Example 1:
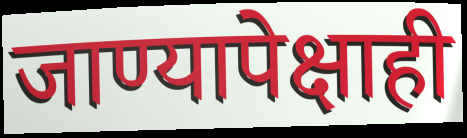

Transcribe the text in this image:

जाण्यापेक्षाही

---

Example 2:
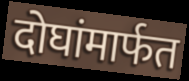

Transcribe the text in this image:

दोघांमार्फत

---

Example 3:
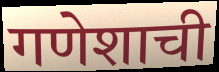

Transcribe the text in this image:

गणेशाची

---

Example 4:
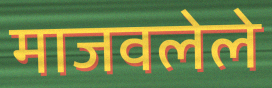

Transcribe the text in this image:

माजवलेले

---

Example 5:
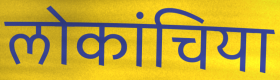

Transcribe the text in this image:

लोकांचिया